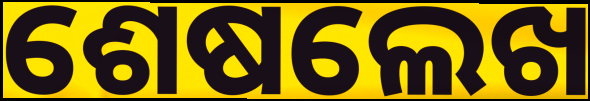
ଶେଷଲେଖ